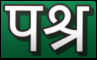
पश्र